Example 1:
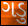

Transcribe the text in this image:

ગડુ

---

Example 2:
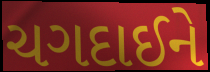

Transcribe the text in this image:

ચગદાઈને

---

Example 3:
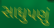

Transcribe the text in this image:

સાધુપણું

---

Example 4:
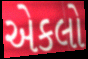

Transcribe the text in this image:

એકલો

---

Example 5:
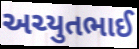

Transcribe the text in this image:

અચ્યુતભાઈ